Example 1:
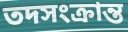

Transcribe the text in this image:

তদসংক্রান্ত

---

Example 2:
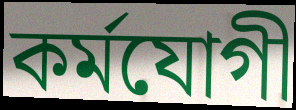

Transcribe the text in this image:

কর্মযোগী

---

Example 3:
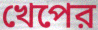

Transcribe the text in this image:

খেপের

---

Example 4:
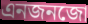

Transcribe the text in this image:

এনজনজো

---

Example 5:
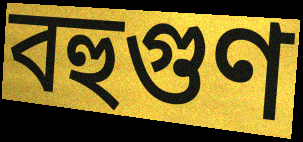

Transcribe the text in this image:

বহুগুণ